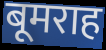
बूमराह